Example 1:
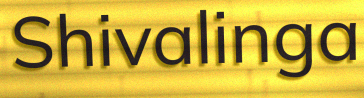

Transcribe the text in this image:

Shivalinga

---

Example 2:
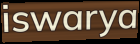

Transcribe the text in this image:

iswarya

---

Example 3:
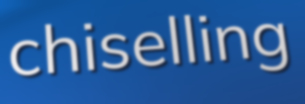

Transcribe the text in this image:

chiselling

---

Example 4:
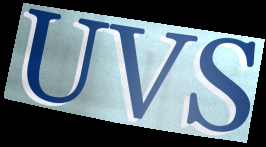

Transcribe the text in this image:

UVS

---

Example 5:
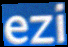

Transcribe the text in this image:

ezi